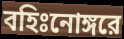
বহিঃনোঙ্গরে